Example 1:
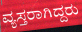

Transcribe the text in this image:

ವ್ಯಸ್ತರಾಗಿದ್ದರು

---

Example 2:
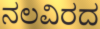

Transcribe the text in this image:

ನಲವಿರದ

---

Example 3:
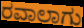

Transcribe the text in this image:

ರವಾಲಾಗು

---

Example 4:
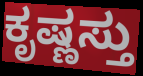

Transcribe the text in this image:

ಕೃಷ್ಣಸ್ತು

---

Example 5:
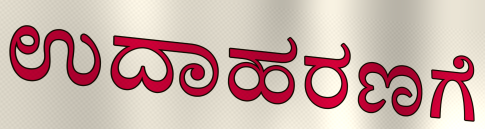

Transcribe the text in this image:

ಉದಾಹರಣಗೆ